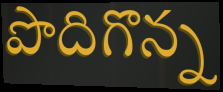
పొదిగొన్న